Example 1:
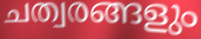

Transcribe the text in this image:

ചത്വരങ്ങളും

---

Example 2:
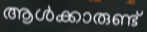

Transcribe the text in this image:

ആൾക്കാരുണ്ട്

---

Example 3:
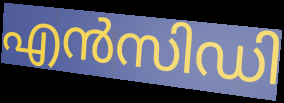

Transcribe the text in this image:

എൻസിഡി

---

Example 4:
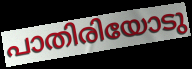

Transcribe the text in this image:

പാതിരിയോടു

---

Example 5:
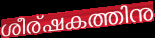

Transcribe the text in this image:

ശീര്ഷകത്തിനു